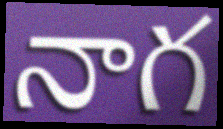
నాగ